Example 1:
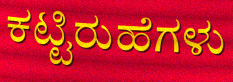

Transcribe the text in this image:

ಕಟ್ಟಿರುಹೆಗಳು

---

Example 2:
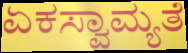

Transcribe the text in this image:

ಏಕಸ್ವಾಮ್ಯತೆ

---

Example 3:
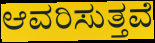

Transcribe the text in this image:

ಆವರಿಸುತ್ತವೆ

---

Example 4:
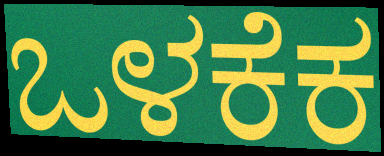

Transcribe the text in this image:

ಒಳಕೆಕ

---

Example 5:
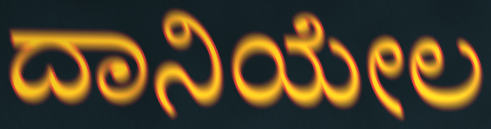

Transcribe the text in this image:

ದಾನಿಯೇಲ